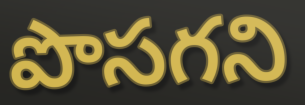
పొసగని